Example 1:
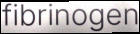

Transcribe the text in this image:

fibrinogen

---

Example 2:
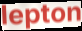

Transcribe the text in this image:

lepton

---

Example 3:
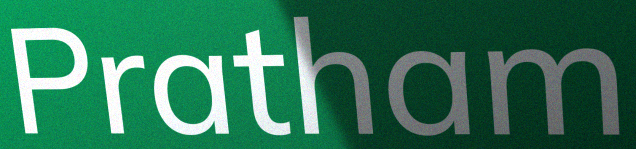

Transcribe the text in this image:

Pratham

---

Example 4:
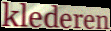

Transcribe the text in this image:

klederen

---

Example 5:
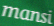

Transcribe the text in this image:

mansi